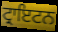
ਟ੍ਰਾਇਟਨ